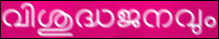
വിശുദ്ധജനവും